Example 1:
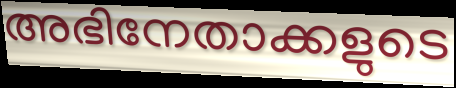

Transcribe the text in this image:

അഭിനേതാക്കളുടെ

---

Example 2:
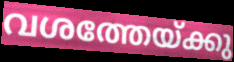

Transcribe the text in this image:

വശത്തേയ്ക്കു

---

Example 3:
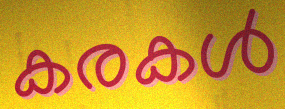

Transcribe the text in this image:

കരകൾ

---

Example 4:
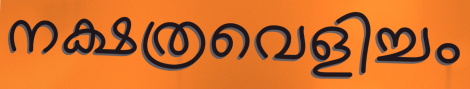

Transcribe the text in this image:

നക്ഷത്രവെളിച്ചം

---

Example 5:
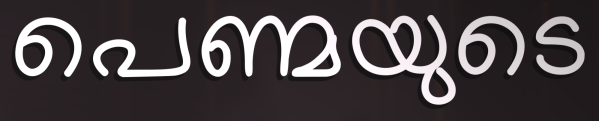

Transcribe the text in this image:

പെണ്മയുടെ